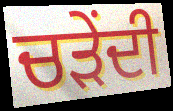
ਚੜੇਂਦੀ